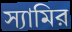
স্যামির